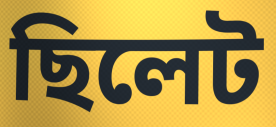
ছিলেট